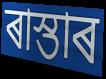
ৰাস্তাৰ